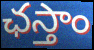
ఛస్తాం